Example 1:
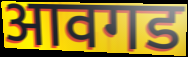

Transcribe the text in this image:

आवगड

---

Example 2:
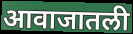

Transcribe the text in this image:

आवाजातली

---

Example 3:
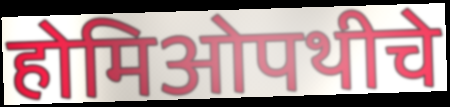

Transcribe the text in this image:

होमिओपथीचे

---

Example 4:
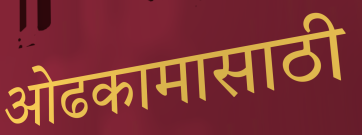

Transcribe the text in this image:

ओढकामासाठी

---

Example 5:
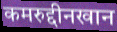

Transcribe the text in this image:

कमरुद्दीनखान